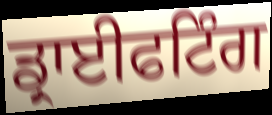
ਡ੍ਰਾਈਫਟਿੰਗ